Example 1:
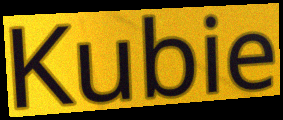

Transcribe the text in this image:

Kubie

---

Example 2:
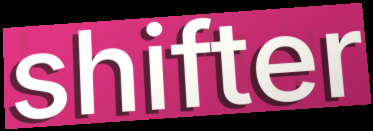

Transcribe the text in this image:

shifter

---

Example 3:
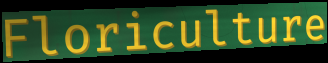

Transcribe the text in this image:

Floriculture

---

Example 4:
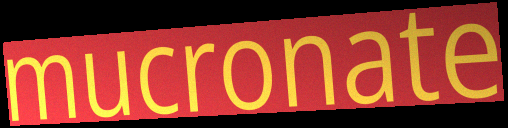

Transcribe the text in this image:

mucronate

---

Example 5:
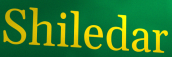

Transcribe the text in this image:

Shiledar